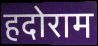
हदोराम